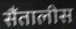
सैंतालीस